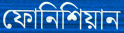
ফোনিশিয়ান